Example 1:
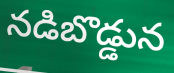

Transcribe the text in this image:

నడిబొడ్డున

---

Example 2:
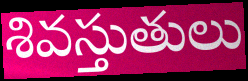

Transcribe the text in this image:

శివస్తుతులు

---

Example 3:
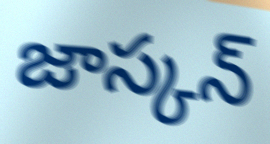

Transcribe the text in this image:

జాస్కన్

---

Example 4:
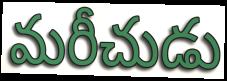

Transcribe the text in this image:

మరీచుడు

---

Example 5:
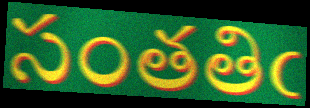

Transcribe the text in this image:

సంతతిఁ